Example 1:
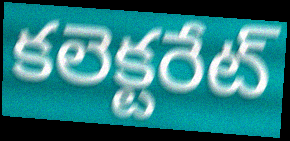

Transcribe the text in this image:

కలెక్టరేట్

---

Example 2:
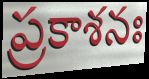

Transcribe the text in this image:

ప్రకాశనః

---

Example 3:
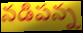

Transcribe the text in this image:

నడిపన్న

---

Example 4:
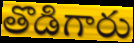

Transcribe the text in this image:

తొడిగారు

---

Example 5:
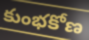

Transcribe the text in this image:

కుంభకోణ